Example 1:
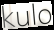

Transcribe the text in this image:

kulo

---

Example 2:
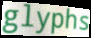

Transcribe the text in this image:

glyphs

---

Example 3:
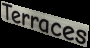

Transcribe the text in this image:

Terraces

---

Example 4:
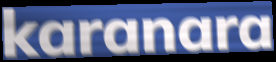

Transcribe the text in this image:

karanara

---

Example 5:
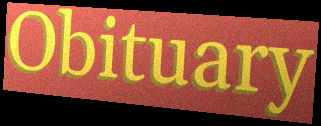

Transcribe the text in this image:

Obituary